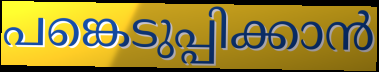
പങ്കെടുപ്പിക്കാൻ